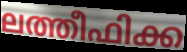
ലത്തീഫിക്ക